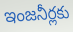
ఇంజనీర్లకు